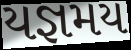
યજ્ઞમય